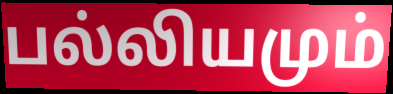
பல்லியமும்